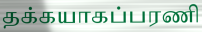
தக்கயாகப்பரணி